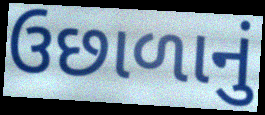
ઉછાળાનું